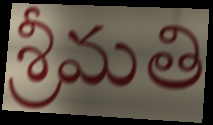
శ్రీమతి